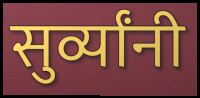
सुर्व्यांनी